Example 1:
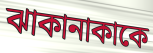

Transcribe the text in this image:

ঝাকানাকাকে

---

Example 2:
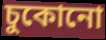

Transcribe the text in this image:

চুকোনো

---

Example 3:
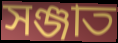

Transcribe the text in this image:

সঞ্জাত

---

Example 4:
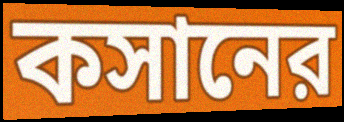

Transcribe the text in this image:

কসানের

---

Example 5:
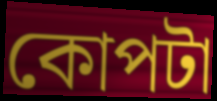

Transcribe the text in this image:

কোপটা